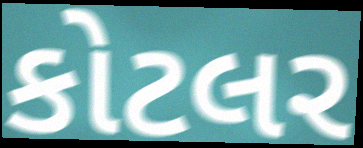
કોટલર